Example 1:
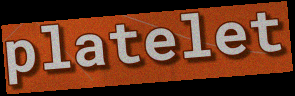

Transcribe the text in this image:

platelet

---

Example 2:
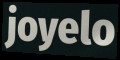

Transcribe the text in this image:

joyelo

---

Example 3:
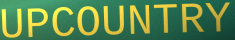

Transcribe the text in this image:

UPCOUNTRY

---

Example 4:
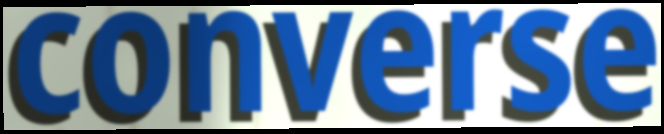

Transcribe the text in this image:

converse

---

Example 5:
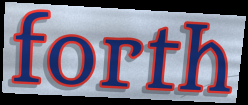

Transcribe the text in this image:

forth